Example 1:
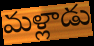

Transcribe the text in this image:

మళ్లాడు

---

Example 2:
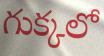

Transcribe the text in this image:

గుక్కలో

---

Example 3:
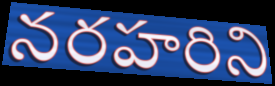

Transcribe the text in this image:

నరహరిని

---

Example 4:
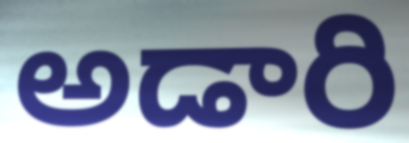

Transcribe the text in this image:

అడారి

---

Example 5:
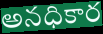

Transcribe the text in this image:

అనధికార